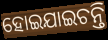
ହୋଇଯାଇଚନ୍ତି